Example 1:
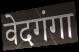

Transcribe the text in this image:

वेदगंगा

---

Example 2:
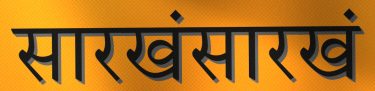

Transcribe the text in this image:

सारखंसारखं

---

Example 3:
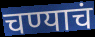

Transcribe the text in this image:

चण्याचं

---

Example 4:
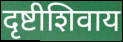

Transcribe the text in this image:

दृष्टीशिवाय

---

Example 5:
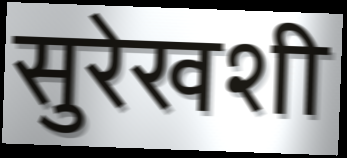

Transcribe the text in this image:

सुरेखशी